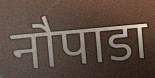
नौपाडा